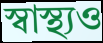
স্বাস্থ্যও